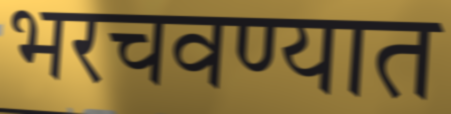
भरचवण्यात